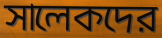
সালেকদের